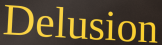
Delusion